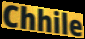
Chhile